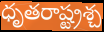
ధృతరాష్ట్రశ్చ